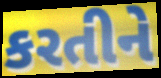
કરતીને